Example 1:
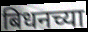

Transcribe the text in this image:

बिधनच्या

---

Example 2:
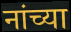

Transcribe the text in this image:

नांच्या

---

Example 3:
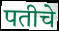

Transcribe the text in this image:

पतीचे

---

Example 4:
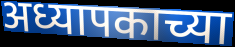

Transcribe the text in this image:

अध्यापकाच्या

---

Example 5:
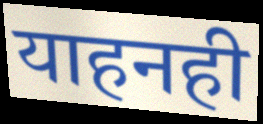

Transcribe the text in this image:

याहनही